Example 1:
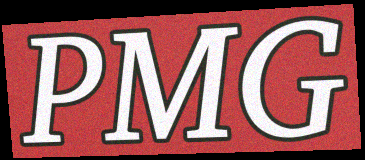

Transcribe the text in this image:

PMG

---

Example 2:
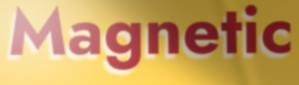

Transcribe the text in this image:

Magnetic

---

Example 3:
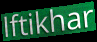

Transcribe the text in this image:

Iftikhar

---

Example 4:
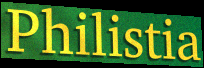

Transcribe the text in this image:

Philistia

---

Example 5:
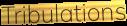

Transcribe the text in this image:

Tribulations